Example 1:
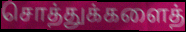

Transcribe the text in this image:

சொத்துக்களைத்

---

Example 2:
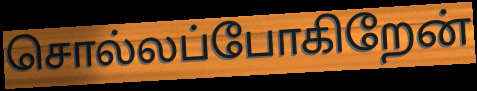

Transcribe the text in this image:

சொல்லப்போகிறேன்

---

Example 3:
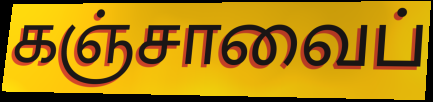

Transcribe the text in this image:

கஞ்சாவைப்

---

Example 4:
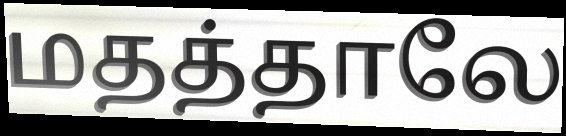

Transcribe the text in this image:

மதத்தாலே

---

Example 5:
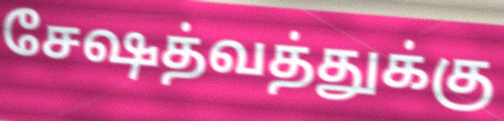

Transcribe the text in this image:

சேஷத்வத்துக்கு